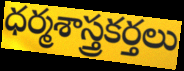
ధర్మశాస్త్రకర్తలు